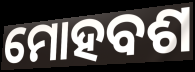
ମୋହବଶ